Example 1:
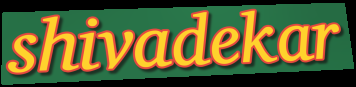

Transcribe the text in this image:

shivadekar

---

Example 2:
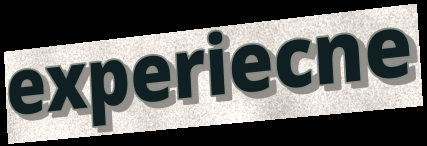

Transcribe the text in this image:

experiecne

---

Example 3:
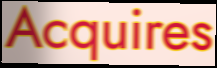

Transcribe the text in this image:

Acquires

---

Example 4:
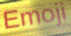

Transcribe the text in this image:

Emoji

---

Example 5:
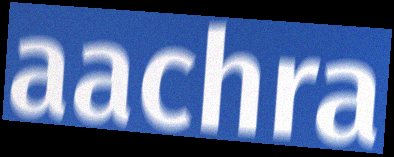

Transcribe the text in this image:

aachra